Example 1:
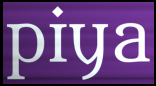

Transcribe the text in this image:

piya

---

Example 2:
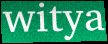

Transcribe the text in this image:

witya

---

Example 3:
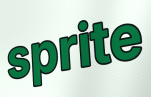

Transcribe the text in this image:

sprite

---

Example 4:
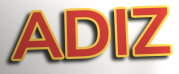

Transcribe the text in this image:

ADIZ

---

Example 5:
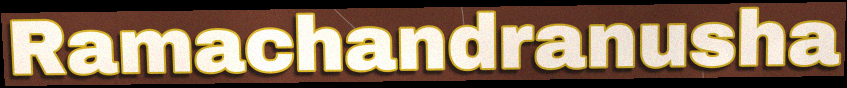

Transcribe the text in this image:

Ramachandranusha